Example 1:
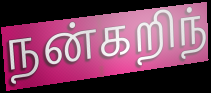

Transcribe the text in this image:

நன்கறிந்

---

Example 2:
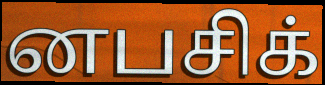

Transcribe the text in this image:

னபசிக்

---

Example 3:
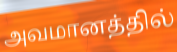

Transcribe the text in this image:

அவமானத்தில்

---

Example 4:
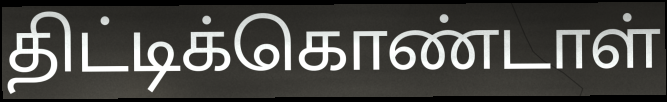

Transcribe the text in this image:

திட்டிக்கொண்டாள்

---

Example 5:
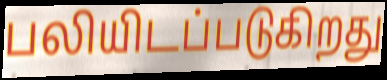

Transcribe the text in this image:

பலியிடப்படுகிறது